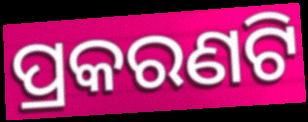
ପ୍ରକରଣଟି